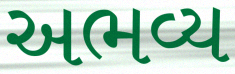
અભવ્ય